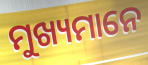
ମୁଖ୍ୟମାନେ